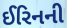
ઈરિનની